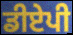
ਡੀਏਪੀ